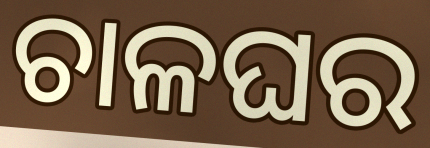
ଚାଳଘର